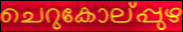
ചെറുകോല്പ്പുഴ